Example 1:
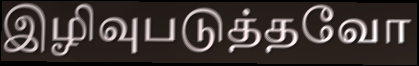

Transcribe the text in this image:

இழிவுபடுத்தவோ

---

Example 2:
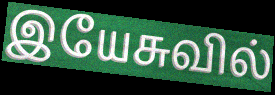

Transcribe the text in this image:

இயேசுவில்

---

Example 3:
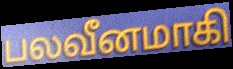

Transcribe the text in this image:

பலவீனமாகி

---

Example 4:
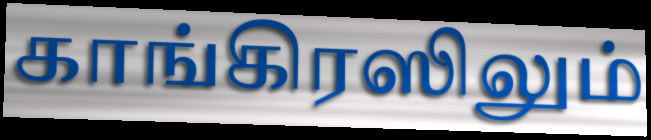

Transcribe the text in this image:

காங்கிரஸிலும்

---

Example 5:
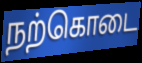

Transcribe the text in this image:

நற்கொடை